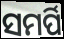
ସମର୍ପି